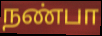
நண்பா